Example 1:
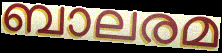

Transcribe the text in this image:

ബാലരമ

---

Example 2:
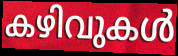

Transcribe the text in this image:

കഴിവുകൾ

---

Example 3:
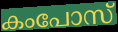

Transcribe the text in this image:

കംപോസ്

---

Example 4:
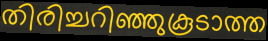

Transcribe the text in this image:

തിരിച്ചറിഞ്ഞുകൂടാത്ത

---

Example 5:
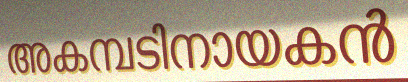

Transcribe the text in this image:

അകമ്പടിനായകൻ